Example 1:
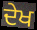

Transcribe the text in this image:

ਦੇਖ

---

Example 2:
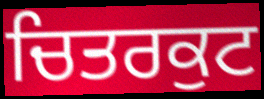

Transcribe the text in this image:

ਚਿਤਰਕੁਟ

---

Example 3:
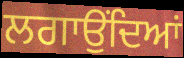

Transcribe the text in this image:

ਲਗਾਉਂਦਿਆਂ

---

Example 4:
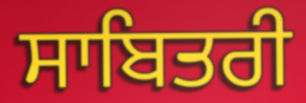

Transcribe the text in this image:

ਸਾਬਿਤਰੀ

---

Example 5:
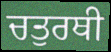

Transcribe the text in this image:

ਚਤੁਰਥੀ